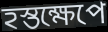
হস্তক্ষেপে